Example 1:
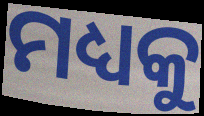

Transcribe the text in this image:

ମଧ୍ୟକୁ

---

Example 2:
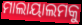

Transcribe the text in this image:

ମାଲାୟାଲମକୁ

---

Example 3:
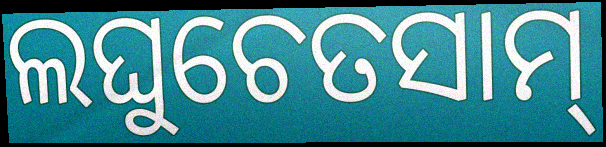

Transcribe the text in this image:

ଲଘୁଚେତସାମ୍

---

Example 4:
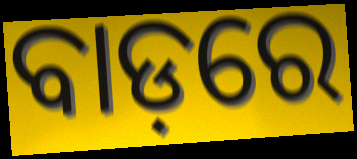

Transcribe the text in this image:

ବାଡ଼ରେ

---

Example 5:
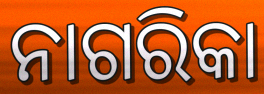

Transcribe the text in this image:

ନାଗରିକା